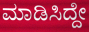
ಮಾಡಿಸಿದ್ದೇ